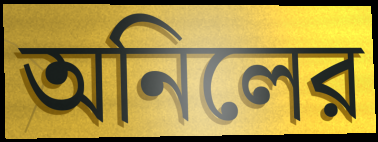
অনিলের